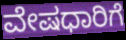
ವೇಷಧಾರಿಗೆ